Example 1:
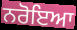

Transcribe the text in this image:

ਨਰੋਇਆ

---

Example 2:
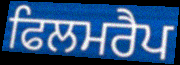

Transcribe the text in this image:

ਫਿਲਮਰੈਪ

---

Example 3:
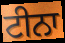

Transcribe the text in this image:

ਟੀਨਾ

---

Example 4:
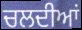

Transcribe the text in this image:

ਚਲਦੀਆਂ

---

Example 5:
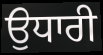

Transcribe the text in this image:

ਉਧਾਰੀ